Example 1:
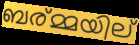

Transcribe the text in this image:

ബര്മ്മയില്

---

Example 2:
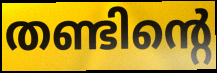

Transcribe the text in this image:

തണ്ടിന്റെ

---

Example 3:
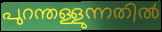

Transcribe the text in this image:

പുറന്തള്ളുന്നതിൽ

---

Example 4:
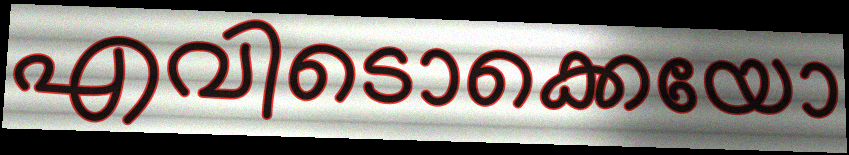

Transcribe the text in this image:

എവിടൊക്കെയോ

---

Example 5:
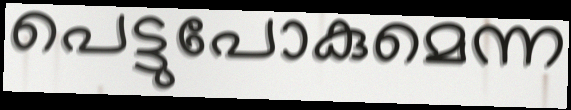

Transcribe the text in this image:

പെട്ടുപോകുമെന്ന